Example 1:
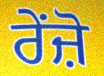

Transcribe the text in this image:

ਰੇਂਜ਼ੋ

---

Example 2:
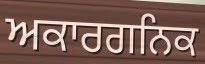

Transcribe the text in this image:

ਅਕਾਰਗਨਿਕ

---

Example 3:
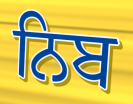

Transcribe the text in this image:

ਨਿਬ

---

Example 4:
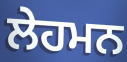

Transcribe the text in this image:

ਲੇਹਮਨ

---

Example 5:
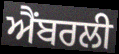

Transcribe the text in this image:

ਐਂਬਰਲੀ